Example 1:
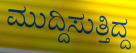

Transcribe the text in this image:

ಮುದ್ದಿಸುತ್ತಿದ್ದ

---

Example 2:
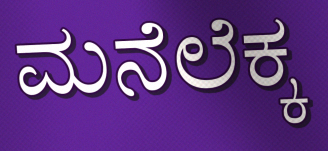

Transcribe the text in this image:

ಮನೆಲೆಕ್ಕ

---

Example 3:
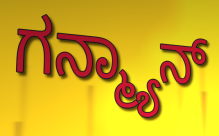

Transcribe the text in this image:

ಗನ್ಮ್ಯಾನ್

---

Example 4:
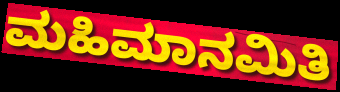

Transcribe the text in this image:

ಮಹಿಮಾನಮಿತಿ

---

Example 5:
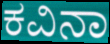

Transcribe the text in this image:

ಕವಿನಾ